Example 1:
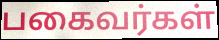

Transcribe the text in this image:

பகைவர்கள்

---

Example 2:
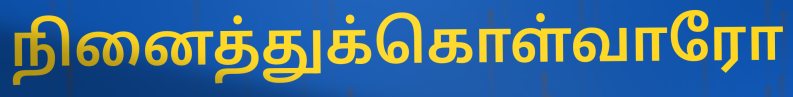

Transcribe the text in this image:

நினைத்துக்கொள்வாரோ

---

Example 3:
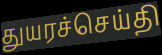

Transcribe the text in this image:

துயரச்செய்தி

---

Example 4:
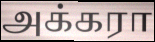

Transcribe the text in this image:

அக்கரா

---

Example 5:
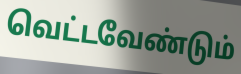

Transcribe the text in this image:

வெட்டவேண்டும்